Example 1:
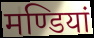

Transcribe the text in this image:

मण्डियां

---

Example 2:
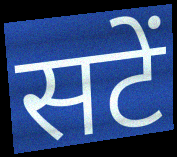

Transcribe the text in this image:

सटें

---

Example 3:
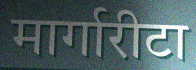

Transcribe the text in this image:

मार्गारीटा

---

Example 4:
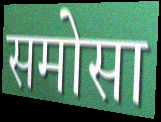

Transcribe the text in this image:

समोसा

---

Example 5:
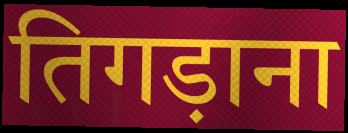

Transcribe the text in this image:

तिगड़ाना